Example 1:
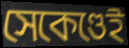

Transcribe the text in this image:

সেকেণ্ডেই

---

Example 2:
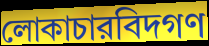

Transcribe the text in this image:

লোকাচারবিদগণ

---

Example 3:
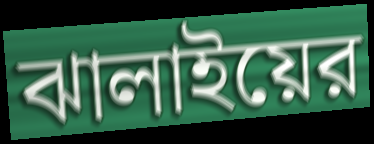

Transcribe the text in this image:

ঝালাইয়ের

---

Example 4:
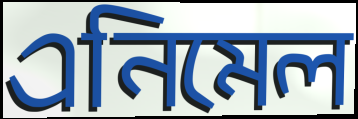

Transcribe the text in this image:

এনিমেল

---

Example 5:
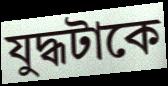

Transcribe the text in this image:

যুদ্ধটাকে